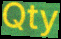
Qty